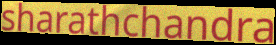
sharathchandra